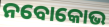
ନବୋକୋଭ